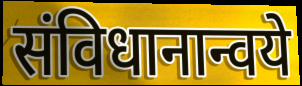
संविधानान्वये